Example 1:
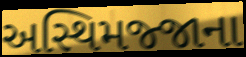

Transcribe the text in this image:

અસ્થિમજ્જાના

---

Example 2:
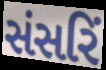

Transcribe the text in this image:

સંસરિં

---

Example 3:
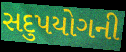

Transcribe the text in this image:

સદુપયોગની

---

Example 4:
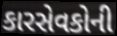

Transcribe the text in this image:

કારસેવકોની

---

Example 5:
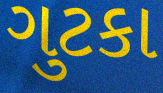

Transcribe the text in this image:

ગુટકા